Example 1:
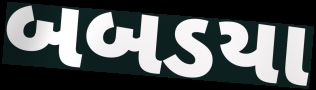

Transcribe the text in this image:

બબડયા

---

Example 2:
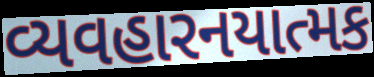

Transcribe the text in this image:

વ્યવહારનયાત્મક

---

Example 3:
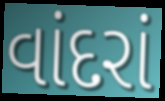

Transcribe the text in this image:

વાંદરાં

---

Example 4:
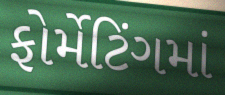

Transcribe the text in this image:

ફોર્મેટિંગમાં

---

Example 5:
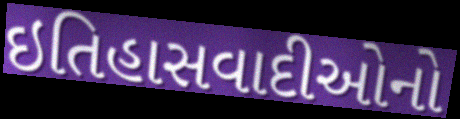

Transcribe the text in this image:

ઇતિહાસવાદીઓનો